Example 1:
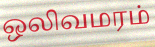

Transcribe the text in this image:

ஒலிவமரம்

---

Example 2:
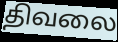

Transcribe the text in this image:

திவலை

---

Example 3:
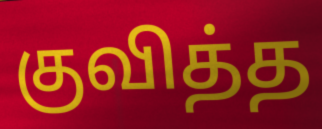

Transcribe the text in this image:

குவித்த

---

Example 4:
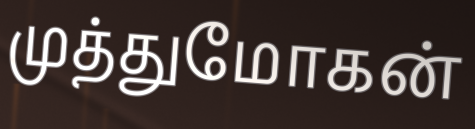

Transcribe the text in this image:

முத்துமோகன்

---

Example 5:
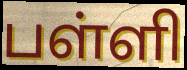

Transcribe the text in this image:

பள்ளி